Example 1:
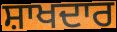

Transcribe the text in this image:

ਸ਼ਾਖਦਾਰ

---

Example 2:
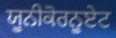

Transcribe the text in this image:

ਯੂਨੀਕੋਰਨੂਏਟ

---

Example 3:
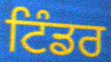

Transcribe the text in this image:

ਟਿੰਡਰ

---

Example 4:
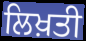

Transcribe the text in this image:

ਲਿਖ਼ਤੀ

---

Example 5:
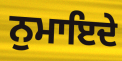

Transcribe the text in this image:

ਨੁਮਾਇਦੇ